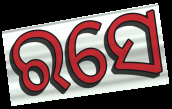
ରସେ